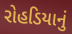
રોહડિયાનું